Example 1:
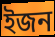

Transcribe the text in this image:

ইজন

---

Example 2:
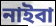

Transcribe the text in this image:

নাইবা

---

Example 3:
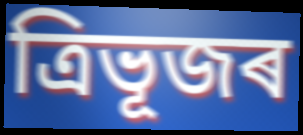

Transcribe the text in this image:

ত্ৰিভূজৰ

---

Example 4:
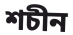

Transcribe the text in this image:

শচীন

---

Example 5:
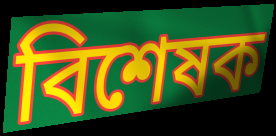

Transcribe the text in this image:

বিশেষক